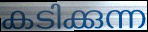
കടിക്കുന്ന